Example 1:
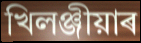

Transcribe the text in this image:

খিলঞ্জীয়াৰ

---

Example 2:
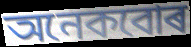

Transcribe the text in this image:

অনেকবোৰ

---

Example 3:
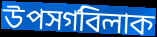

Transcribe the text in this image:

উপসৰ্গবিলাক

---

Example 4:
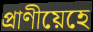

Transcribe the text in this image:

প্ৰাণীয়েহে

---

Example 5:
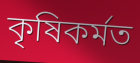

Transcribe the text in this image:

কৃষিকৰ্মত